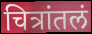
चित्रांतलं